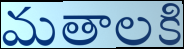
మతాలకి